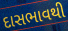
દાસભાવથી